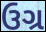
ઉગ્ર